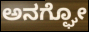
ಅನಗ್ಘೋ